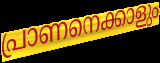
പ്രാണനെക്കാളും